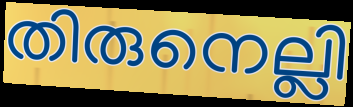
തിരുനെല്ലി